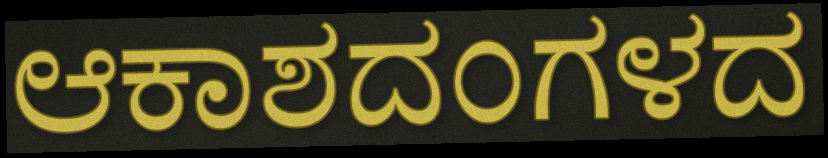
ಆಕಾಶದಂಗಳದ